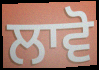
ਲਾਵੋ